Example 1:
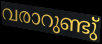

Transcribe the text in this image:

വരാറുണ്ടു്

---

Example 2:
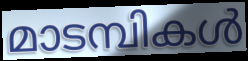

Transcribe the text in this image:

മാടമ്പികൾ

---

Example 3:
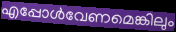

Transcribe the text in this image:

എപ്പോൾവേണമെങ്കിലും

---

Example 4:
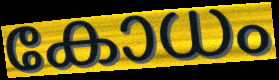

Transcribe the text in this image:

കോധം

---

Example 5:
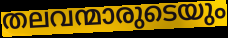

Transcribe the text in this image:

തലവന്മാരുടെയും